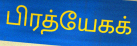
பிரத்யேகக்